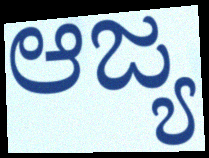
ಆಜ್ಯ